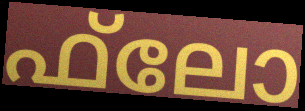
ഫ്‌ലോ